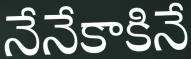
నేనేకాకినే